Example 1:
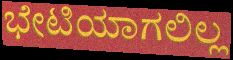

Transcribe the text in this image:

ಭೇಟಿಯಾಗಲಿಲ್ಲ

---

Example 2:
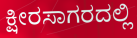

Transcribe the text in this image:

ಕ್ಷೀರಸಾಗರದಲ್ಲಿ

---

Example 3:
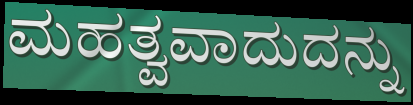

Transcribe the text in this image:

ಮಹತ್ವವಾದುದನ್ನು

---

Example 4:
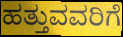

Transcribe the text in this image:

ಹತ್ತುವವರಿಗೆ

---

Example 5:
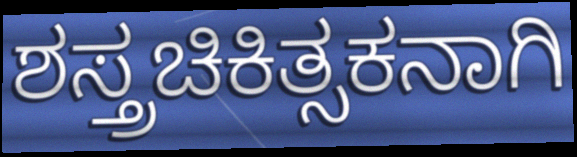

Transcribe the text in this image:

ಶಸ್ತ್ರಚಿಕಿತ್ಸಕನಾಗಿ